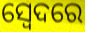
ସ୍ଵେଦରେ